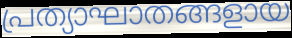
പ്രത്യാഘാതങ്ങളായ